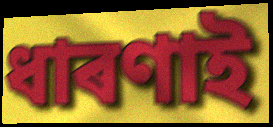
ধাৰণাই